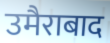
उमैराबाद